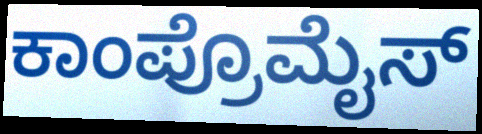
ಕಾಂಪ್ರೊಮೈಸ್